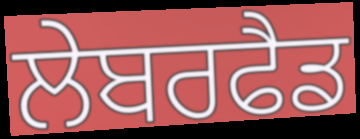
ਲੇਬਰਫੈਡ